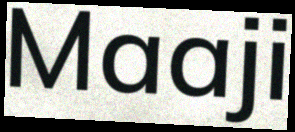
Maaji